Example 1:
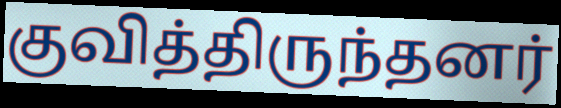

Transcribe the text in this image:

குவித்திருந்தனர்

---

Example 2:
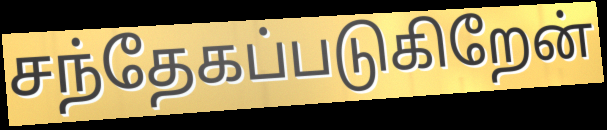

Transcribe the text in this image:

சந்தேகப்படுகிறேன்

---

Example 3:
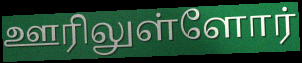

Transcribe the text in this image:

ஊரிலுள்ளோர்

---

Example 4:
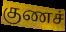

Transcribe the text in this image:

குணச்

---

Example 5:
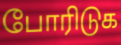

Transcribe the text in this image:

போரிடுக